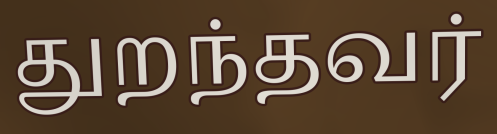
துறந்தவர்